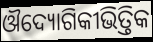
ଔଦ୍ୟୋଗିକୀଭିତ୍ତିକ